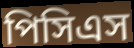
পিসিএস